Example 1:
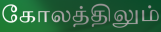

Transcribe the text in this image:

கோலத்திலும்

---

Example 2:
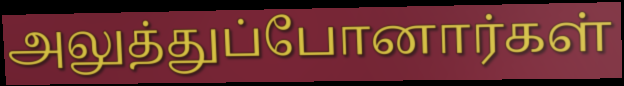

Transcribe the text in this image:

அலுத்துப்போனார்கள்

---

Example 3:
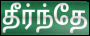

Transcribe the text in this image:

தீர்ந்தே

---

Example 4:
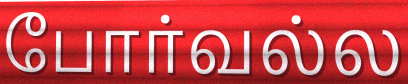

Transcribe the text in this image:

போர்வல்ல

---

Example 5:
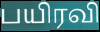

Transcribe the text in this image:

பயிரவி